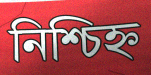
নিশ্চিহ্ন